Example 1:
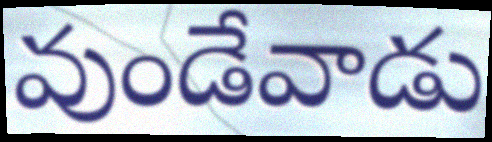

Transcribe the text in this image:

వుండేవాడు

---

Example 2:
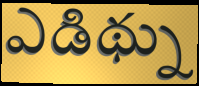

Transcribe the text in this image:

ఎడిథ్ను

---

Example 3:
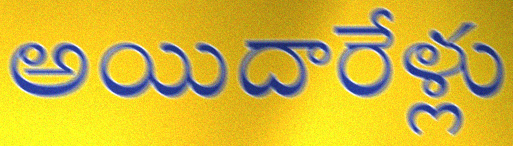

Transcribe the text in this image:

అయిదారేళ్లు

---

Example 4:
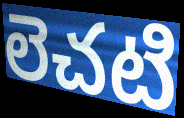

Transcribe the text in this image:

లెచటి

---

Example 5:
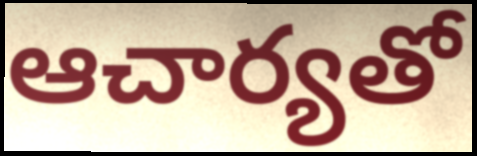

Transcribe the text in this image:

ఆచార్యతో